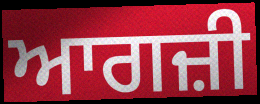
ਆਗਜ਼ੀ